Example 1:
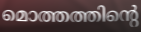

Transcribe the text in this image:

മൊത്തത്തിന്റെ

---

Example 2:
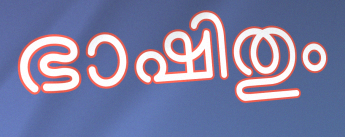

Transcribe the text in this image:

ഭാഷിതും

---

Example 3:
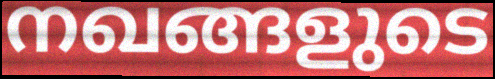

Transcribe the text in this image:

നഖങ്ങളുടെ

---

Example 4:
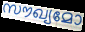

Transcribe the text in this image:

സൗഖ്യമോ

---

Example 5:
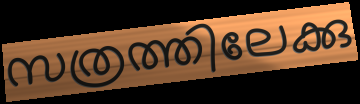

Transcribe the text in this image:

സത്രത്തിലേക്കു